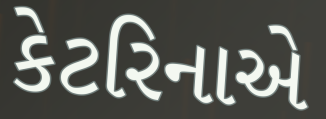
કેટરિનાએ